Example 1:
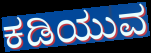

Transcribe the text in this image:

ಕಡಿಯುವ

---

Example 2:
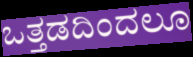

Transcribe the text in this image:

ಒತ್ತಡದಿಂದಲೂ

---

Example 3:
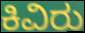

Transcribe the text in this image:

ಕಿವಿರು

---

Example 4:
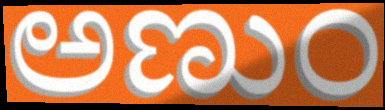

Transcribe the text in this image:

ಅಣುಂ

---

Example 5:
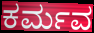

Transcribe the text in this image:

ಕರ್ಮವ